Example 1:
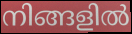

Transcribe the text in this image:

നിങ്ങളിൽ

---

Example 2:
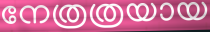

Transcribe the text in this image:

നേത്രത്രയായ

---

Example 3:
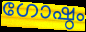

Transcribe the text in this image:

ഗോഷ്ഠം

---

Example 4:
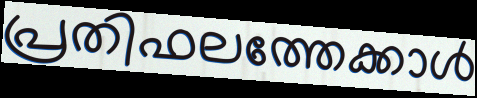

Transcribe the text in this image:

പ്രതിഫലത്തേക്കാൾ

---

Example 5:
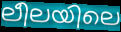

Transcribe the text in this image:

ലീലയിലെ